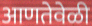
आणतेवेळी